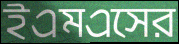
ইএমএসের